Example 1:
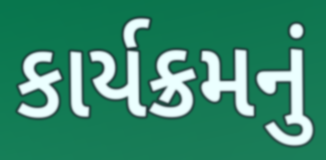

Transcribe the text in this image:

કાર્યક્રમનું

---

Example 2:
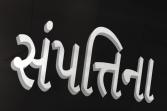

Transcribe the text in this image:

સંપત્તિના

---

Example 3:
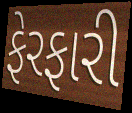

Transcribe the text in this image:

ફેરફારી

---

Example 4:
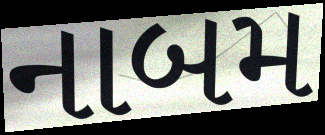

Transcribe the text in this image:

નાબમ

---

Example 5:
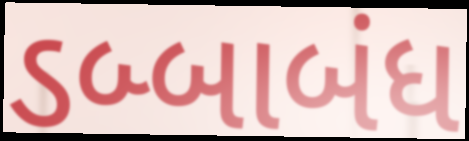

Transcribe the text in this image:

ડબ્બાબંધ